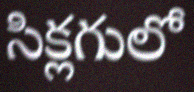
సిక్లగులో